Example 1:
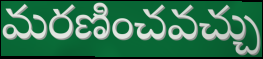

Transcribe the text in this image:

మరణించవచ్చు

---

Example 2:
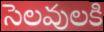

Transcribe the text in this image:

సెలవులకి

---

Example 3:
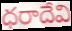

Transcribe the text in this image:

ధరాదేవి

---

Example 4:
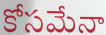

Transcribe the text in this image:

కోసమేనా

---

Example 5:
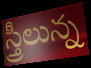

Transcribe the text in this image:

స్త్రీలున్న